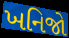
ખનિજો